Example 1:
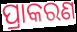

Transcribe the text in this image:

ପ୍ରାକରଣ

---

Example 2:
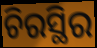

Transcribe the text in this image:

ଚିରସ୍ଥିର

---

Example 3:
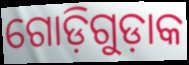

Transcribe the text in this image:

ଗୋଡ଼ିଗୁଡ଼ାକ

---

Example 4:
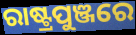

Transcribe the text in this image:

ରାଷ୍ଟ୍ରପୁଞ୍ଜରେ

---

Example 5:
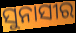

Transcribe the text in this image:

ସୁନାସୀର